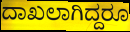
ದಾಖಲಾಗಿದ್ದರೂ